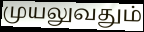
முயலுவதும்